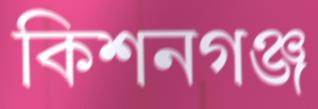
কিশনগঞ্জ